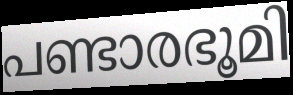
പണ്ടാരഭൂമി